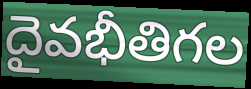
దైవభీతిగల